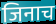
जिनाच